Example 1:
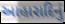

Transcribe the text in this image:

આહારાદિનું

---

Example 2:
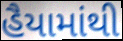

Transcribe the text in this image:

હૈયામાંથી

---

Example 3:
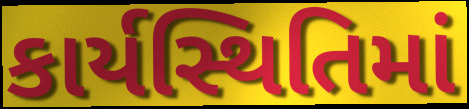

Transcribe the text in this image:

કાર્યસ્થિતિમાં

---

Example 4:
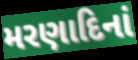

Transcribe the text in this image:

મરણાદિનાં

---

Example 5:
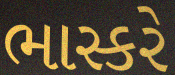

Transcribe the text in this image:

ભાસ્કરે